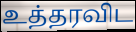
உத்தரவிட